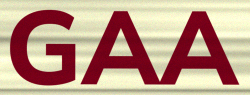
GAA